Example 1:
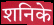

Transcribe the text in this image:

शनिके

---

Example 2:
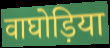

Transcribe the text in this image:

वाघोड़िया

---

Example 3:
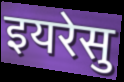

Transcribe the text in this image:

इयरेसु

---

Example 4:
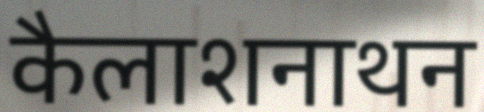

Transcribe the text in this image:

कैलाशनाथन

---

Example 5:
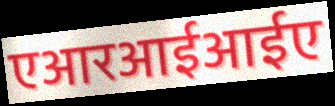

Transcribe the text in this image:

एआरआईआईए